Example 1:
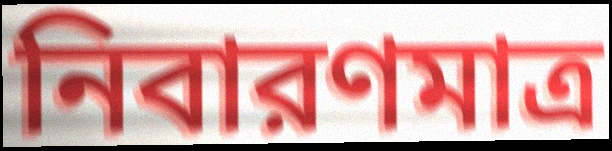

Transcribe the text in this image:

নিবারণমাত্র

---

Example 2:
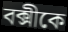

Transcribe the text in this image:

বক্সীকে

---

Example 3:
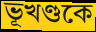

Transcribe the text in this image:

ভূখণ্ডকে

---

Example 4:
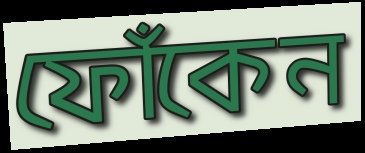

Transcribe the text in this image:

ফোঁকেন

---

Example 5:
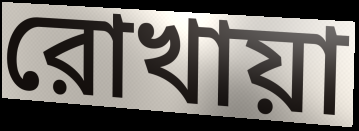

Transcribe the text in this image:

রোখায়া